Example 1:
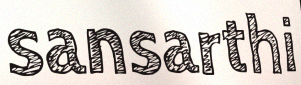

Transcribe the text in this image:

sansarthi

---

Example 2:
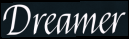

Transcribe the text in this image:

Dreamer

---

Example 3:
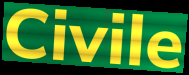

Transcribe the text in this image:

Civile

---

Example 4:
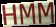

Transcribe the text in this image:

HMM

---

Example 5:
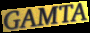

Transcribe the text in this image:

GAMTA